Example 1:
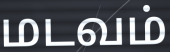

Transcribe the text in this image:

மடவம்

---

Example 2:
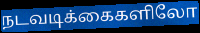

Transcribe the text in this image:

நடவடிக்கைகளிலோ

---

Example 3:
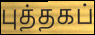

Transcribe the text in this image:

புத்தகப்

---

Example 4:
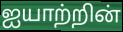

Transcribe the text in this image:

ஐயாற்றின்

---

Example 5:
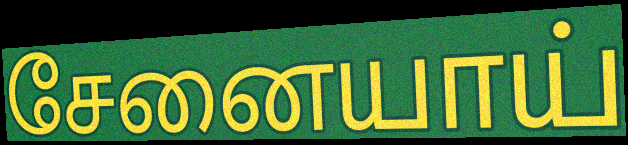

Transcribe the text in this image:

சேனையாய்